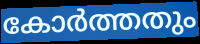
കോർത്തതും